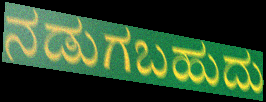
ನಡುಗಬಹುದು